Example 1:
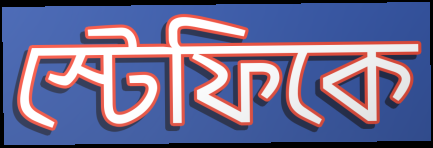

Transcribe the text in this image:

স্টেফিকে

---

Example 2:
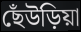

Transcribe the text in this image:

ছেঁউড়িয়া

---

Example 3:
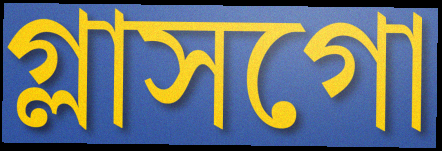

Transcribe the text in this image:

গ্লাসগো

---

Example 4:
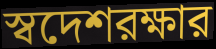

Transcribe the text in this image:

স্বদেশরক্ষার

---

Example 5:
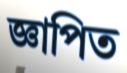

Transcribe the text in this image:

জ্ঞাপিত